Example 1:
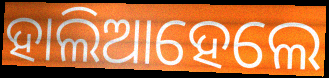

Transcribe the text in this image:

ହାଲିଆହେଲେ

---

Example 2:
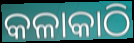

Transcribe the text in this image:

କଳାକାଠି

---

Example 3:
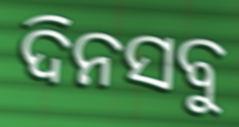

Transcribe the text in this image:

ଦିନସବୁ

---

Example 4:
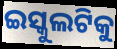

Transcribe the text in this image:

ଇସ୍କୁଲଟିକୁ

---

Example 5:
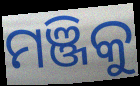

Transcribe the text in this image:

ମଞ୍ଜିକୁ